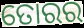
ତୋରର